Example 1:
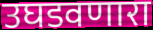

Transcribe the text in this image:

उघडवणारा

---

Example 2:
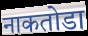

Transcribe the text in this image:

नाकतोडा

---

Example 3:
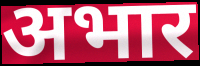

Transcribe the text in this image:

अभार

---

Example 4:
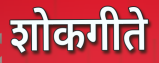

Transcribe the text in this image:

शोकगीते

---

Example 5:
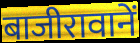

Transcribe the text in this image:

बाजीरावानें